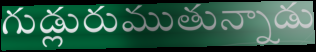
గుడ్లురుముతున్నాడు